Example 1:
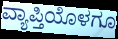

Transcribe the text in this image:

ವ್ಯಾಪ್ತಿಯೊಳಗೂ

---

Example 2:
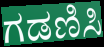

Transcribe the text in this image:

ಗಡಣಿಸಿ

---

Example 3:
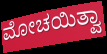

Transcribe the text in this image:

ಮೋಚಯಿತ್ವಾ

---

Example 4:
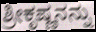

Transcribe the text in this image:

ಶ್ರೀಕೃಷ್ಣನನ್ನು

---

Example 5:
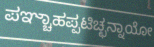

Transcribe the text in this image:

ಪಞ್ಚಾಹಪ್ಪಟಿಚ್ಛನ್ನಾಯೋ